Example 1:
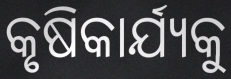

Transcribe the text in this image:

କୃଷିକାର୍ଯ୍ୟକୁ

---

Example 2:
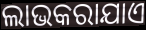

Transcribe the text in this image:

ଲାଭକରାଯାଏ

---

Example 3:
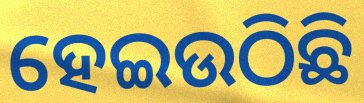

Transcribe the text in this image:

ହେଇଉଠିଛି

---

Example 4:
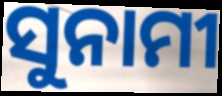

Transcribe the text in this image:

ସୁନାମୀ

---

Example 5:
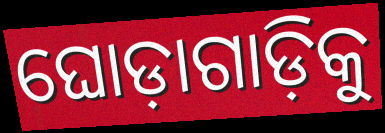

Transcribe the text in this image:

ଘୋଡ଼ାଗାଡ଼ିକୁ